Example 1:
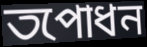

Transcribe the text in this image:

তপোধন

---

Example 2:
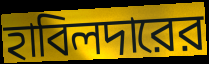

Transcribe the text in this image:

হাবিলদারের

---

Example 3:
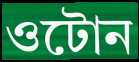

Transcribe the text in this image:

ওটোন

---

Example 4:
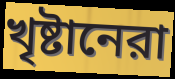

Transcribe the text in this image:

খৃষ্টানেরা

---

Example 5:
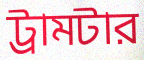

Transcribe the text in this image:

ট্রামটার